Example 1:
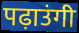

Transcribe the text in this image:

पढ़ाउंगी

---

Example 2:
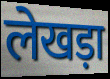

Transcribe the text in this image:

लेखड़ा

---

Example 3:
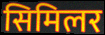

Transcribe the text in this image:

सिमिलर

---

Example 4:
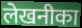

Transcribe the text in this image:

लेखनीका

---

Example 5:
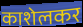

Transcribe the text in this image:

काशेलकर